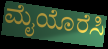
ಮೈಯೊರೆಸಿ